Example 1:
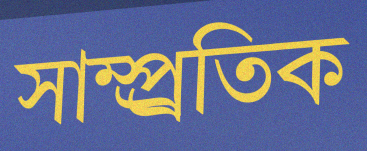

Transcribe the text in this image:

সাম্প্র্রতিক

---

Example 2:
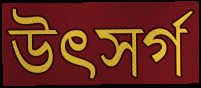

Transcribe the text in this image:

উৎসর্গ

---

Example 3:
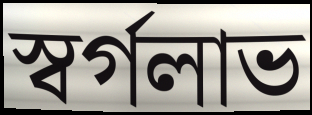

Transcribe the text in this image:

স্বর্গলাভ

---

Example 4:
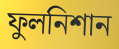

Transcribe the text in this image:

ফুলনিশান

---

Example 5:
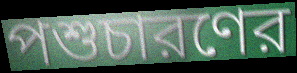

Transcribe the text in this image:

পশুচারণের